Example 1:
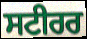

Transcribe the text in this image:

ਸਟੀਰਰ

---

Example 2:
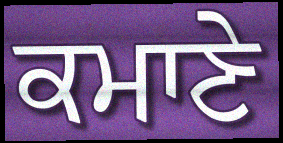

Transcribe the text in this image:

ਕਮਾਣੇ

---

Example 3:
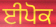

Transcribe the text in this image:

ਈਪੋਕ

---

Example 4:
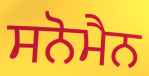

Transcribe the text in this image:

ਸਨੋਮੈਨ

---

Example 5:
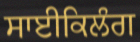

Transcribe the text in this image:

ਸਾਈਕਿਲੰਗ